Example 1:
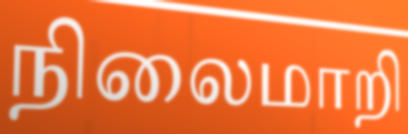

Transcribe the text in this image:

நிலைமாறி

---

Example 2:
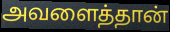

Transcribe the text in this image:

அவளைத்தான்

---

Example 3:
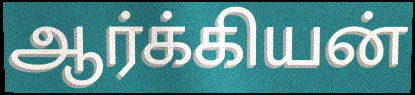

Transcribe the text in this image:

ஆர்க்கியன்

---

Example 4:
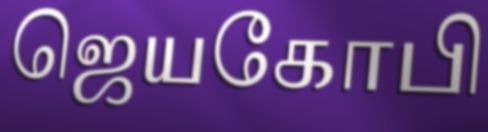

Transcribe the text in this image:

ஜெயகோபி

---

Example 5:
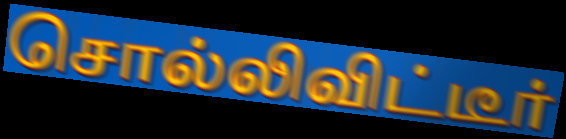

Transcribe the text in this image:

சொல்லிவிட்டீர்